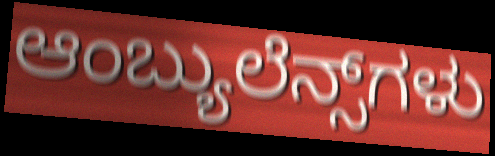
ಆಂಬ್ಯುಲೆನ್ಸ್‌ಗಳು